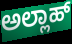
ಅಲ್ಲಾಹ್